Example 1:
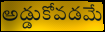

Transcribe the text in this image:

అడ్డుకోవడమే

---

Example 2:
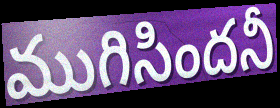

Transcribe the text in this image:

ముగిసిందనీ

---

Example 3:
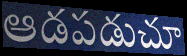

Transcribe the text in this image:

ఆడపడుచూ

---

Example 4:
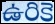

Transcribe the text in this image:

ఉరికె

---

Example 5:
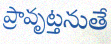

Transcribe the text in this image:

ప్రావృట్తనుతే